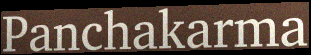
Panchakarma